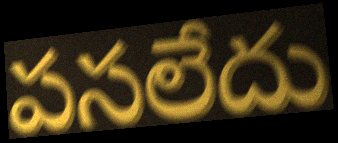
పసలేదు